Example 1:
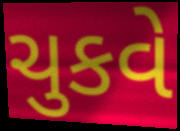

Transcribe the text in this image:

ચુકવે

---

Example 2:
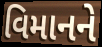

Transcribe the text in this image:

વિમાનને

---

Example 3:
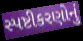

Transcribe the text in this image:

સ્પષ્ટીકરણોનું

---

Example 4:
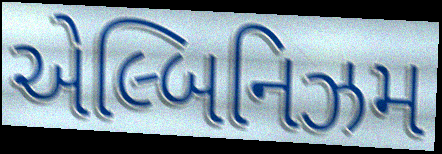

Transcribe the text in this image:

એલ્બિનિઝમ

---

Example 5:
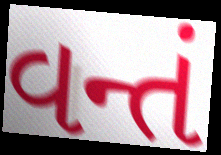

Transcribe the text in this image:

વન્તં